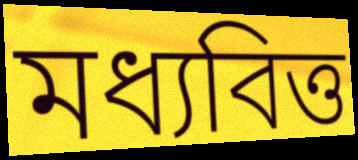
মধ্যবিত্ত